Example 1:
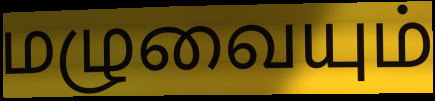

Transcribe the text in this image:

மழுவையும்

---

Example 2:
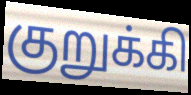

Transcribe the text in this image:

குறுக்கி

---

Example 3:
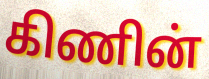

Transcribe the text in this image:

கிணின்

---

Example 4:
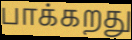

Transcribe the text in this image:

பாக்கறது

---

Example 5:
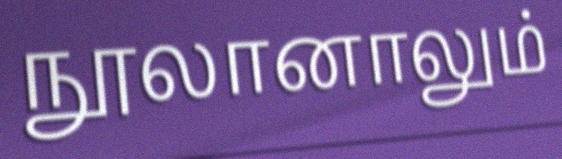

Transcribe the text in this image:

நூலானாலும்